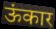
ऊंकार